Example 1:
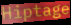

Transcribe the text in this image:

Hiptage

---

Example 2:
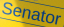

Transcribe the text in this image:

Senator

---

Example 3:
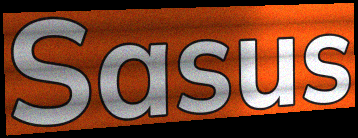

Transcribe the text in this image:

Sasus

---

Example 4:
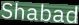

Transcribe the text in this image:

Shabad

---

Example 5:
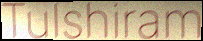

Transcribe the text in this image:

Tulshiram